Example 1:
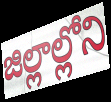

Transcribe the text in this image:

జిల్లాల్లోని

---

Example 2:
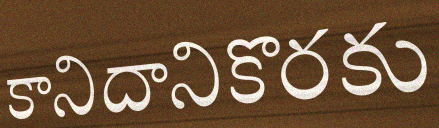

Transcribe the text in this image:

కానిదానికొరకు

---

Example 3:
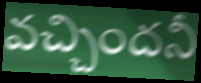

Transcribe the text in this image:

వచ్చిందనీ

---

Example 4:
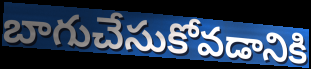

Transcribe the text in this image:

బాగుచేసుకోవడానికి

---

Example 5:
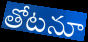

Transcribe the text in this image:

తోటనూ